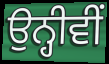
ਉਨ੍ਹੀਵੀਂ